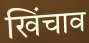
खिंचाव